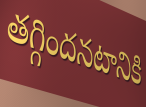
తగ్గిందనటానికి